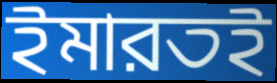
ইমারতই